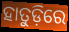
ହାତୁଡ଼ିରେ